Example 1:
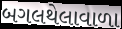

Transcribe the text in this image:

બગલથેલાવાળા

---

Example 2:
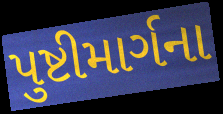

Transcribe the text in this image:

પુષ્ટીમાર્ગના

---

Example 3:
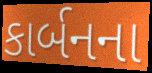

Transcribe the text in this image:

કાર્બનના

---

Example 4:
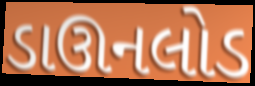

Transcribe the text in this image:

ડાઊનલોડ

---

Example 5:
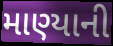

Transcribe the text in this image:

માણ્યાની